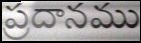
ప్రదానము